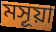
মসূয়া